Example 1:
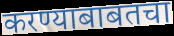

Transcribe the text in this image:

करण्याबाबतचा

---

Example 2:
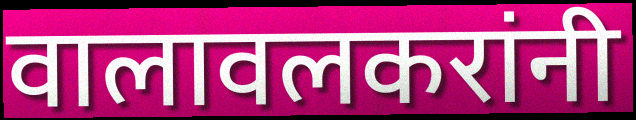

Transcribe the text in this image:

वालावलकरांनी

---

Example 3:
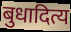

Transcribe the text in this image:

बुधादित्य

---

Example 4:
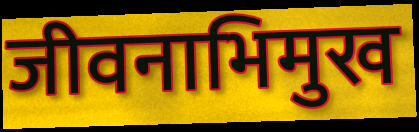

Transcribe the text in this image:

जीवनाभिमुख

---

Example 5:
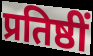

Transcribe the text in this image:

प्रतिष्ठीं